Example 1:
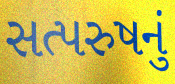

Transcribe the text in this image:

સત્પરુષનું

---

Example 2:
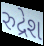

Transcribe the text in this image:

રુદ્રેશ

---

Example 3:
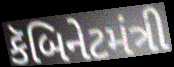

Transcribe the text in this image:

કૅબિનેટમંત્રી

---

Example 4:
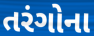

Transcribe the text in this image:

તરંગોના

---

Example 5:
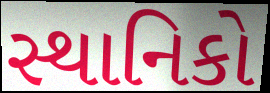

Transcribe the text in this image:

સ્થાનિકો